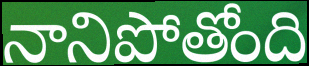
నానిపోతోంది